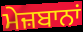
ਮੇਜ਼ਬਾਨਾਂ